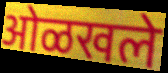
ओळखले